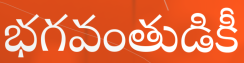
భగవంతుడికీ